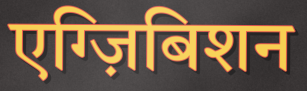
एग्ज़िबिशन